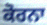
ਕੋਰਨਾ